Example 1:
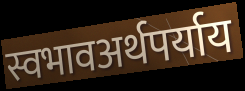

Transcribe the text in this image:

स्वभावअर्थपर्याय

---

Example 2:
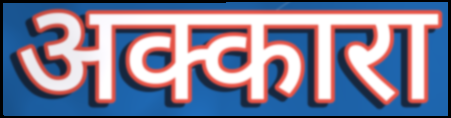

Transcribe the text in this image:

अक्कारा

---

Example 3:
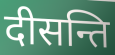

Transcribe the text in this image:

दीसन्ति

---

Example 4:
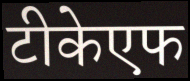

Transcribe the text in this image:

टीकेएफ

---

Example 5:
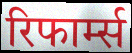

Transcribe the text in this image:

रिफार्म्स